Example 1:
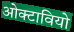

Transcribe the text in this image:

ओक्टावियो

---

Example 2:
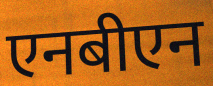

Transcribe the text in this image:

एनबीएन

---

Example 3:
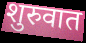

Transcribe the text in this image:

शुरुवात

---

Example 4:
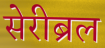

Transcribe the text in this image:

सेरीब्रल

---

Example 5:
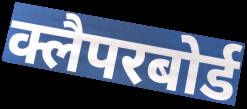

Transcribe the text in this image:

क्लैपरबोर्ड